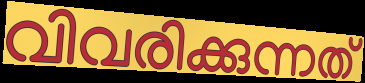
വിവരിക്കുന്നത്